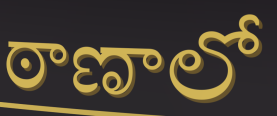
ఠాణాలో